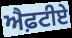
ਐਫ਼ਟੀਏ